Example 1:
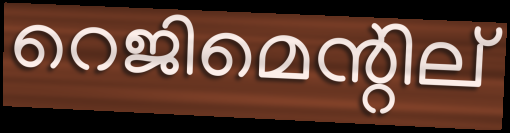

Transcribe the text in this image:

റെജിമെന്റില്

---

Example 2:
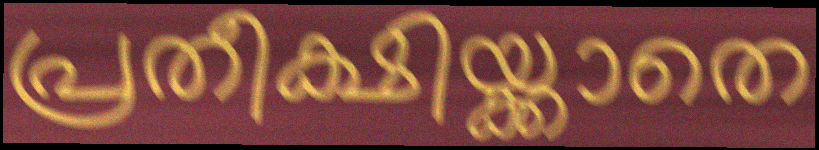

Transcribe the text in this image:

പ്രതീക്ഷിയ്ക്കാതെ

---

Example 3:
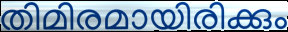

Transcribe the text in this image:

തിമിരമായിരിക്കും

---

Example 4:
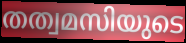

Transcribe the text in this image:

തത്വമസിയുടെ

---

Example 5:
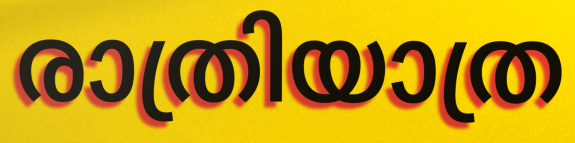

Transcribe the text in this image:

രാത്രിയാത്ര